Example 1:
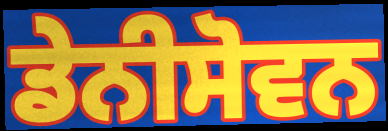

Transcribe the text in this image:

ਡੇਨੀਸੋਵਨ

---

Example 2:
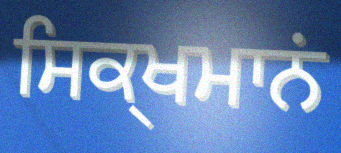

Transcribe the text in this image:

ਸਿਕ੍ਖਮਾਨਂ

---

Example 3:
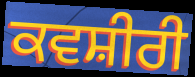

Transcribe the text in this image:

ਕਵਸ਼ੀਰੀ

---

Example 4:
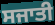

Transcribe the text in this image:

ਸਜਾਤੀ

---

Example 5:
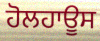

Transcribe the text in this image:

ਹੋਲਹਾਊਸ